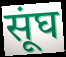
सूंघ